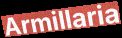
Armillaria